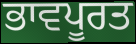
ਭਾਵਪੂਰਤ